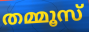
തമ്മൂസ്